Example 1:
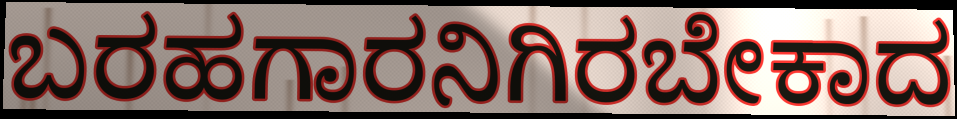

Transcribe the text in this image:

ಬರಹಗಾರನಿಗಿರಬೇಕಾದ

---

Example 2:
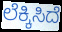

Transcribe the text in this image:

ಲೆಕ್ಕಿಸಿದೆ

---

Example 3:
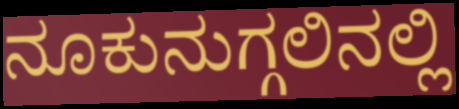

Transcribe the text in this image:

ನೂಕುನುಗ್ಗಲಿನಲ್ಲಿ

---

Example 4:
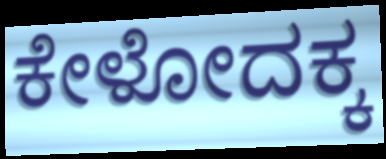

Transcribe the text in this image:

ಕೇಳೋದಕ್ಕ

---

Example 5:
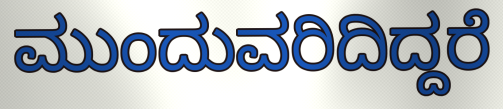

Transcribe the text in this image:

ಮುಂದುವರಿದಿದ್ದರೆ